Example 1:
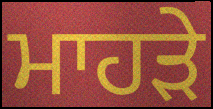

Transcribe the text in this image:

ਮਾਹੜੇ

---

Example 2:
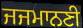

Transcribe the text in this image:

ਜਜਮਾਨਣੀ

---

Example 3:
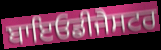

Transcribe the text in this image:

ਬਾਇਓਡੀਜੈਸਟਰ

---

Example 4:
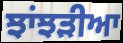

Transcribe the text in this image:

ਝਾਂਝੜੀਆ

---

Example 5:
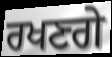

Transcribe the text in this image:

ਰਖਣਗੇ